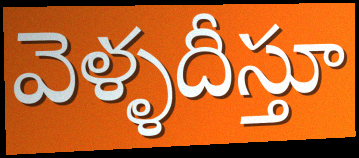
వెళ్ళదీస్తూ